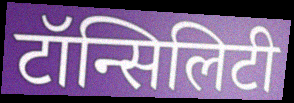
टॉन्सिलिटी